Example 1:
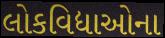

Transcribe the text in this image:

લોકવિદ્યાઓના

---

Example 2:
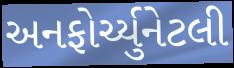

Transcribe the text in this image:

અનફોર્ચ્યુનેટલી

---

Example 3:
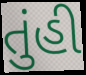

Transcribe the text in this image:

તુંહી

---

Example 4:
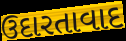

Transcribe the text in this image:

ઉદારતાવાદ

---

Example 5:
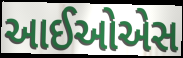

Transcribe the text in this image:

આઈઓએસ